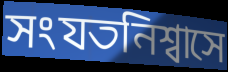
সংযতনিশ্বাসে